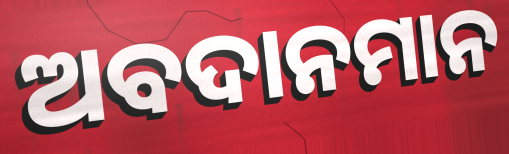
ଅବଦାନମାନ